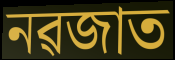
নৱজাত